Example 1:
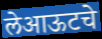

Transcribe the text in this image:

लेआऊटचे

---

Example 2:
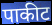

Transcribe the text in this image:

पाकीट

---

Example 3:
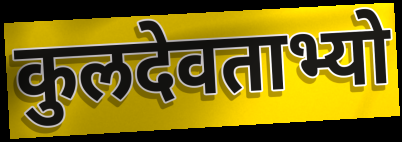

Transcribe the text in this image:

कुलदेवताभ्यो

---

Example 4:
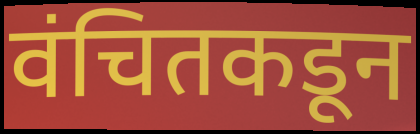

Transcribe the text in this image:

वंचितकडून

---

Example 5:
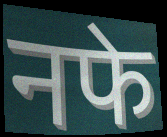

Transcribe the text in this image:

नफे